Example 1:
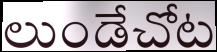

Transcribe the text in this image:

లుండేచోట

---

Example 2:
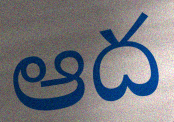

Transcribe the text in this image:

ఆద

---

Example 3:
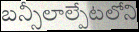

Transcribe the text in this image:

బన్సీలాల్పేటలోని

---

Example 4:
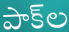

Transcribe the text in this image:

పాక్‌ల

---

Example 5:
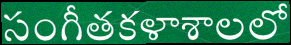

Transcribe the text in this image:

సంగీతకళాశాలలో